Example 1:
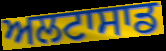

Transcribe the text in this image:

ਅਲਟਾਸਾਡ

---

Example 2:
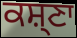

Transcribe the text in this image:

ਕਸ਼੍ਣਾ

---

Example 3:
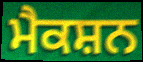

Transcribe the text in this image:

ਮੈਕਸ਼ਨ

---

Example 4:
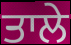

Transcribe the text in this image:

ਤਾਲੇ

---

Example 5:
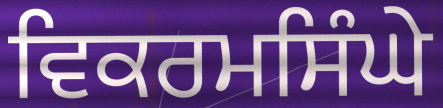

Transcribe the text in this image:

ਵਿਕਰਮਸਿੰਘੇ